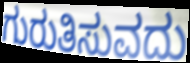
ಗುರುತಿಸುವದು